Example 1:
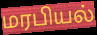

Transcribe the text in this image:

மரபியல்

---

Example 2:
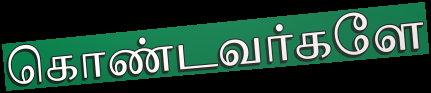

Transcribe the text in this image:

கொண்டவர்களே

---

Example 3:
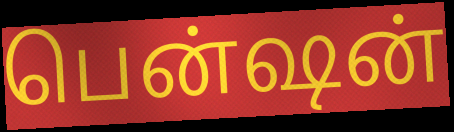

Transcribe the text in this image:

பென்ஷன்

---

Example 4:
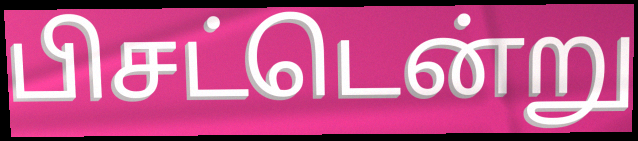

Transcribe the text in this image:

பிசட்டென்று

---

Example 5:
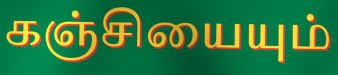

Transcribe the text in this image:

கஞ்சியையும்